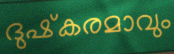
ദുഷ്‌കരമാവും